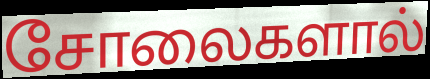
சோலைகளால்